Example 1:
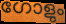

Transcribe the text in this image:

ഗോളും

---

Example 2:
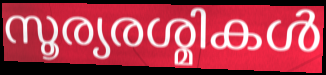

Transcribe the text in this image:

സൂര്യരശ്മികൾ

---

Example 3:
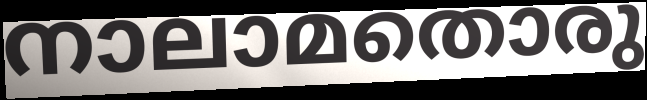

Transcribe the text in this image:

നാലാമതൊരു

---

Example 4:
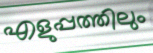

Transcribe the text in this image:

എളുപ്പത്തിലും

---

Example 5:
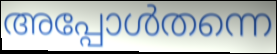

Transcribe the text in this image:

അപ്പോൾതന്നെ